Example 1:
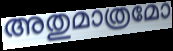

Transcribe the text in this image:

അതുമാത്രമോ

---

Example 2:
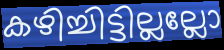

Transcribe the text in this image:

കഴിച്ചിട്ടില്ലല്ലോ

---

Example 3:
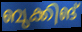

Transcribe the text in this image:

ബുക്കിങ്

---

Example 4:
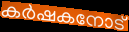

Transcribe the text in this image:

കർഷകനോട്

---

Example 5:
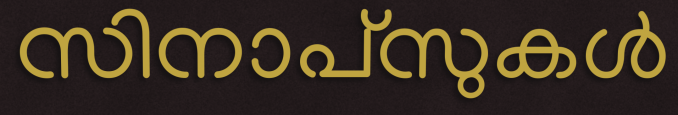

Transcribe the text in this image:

സിനാപ്സുകൾ